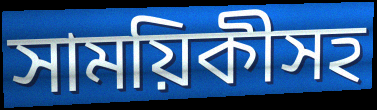
সাময়িকীসহ